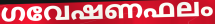
ഗവേഷണഫലം